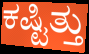
ಕಷ್ಟಿತ್ತು